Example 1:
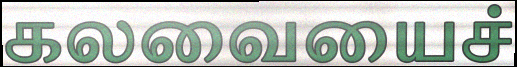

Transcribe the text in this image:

கலவையைச்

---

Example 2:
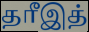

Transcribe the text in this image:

தரீஇத்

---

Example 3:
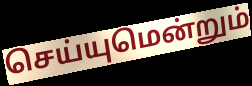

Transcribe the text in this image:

செய்யுமென்றும்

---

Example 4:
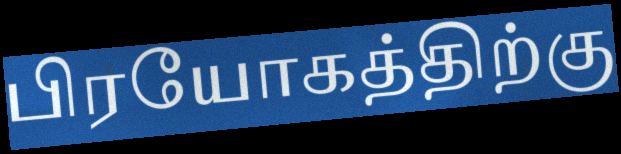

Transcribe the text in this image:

பிரயோகத்திற்கு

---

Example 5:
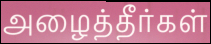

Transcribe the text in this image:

அழைத்தீர்கள்